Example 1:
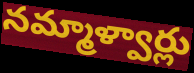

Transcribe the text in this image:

నమ్మాళ్వార్లు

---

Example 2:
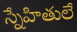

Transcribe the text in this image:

స్నేహితులే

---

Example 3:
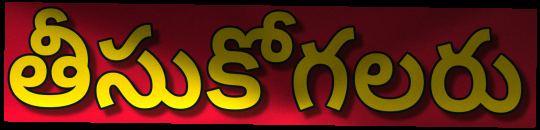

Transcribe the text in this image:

తీసుకోగలరు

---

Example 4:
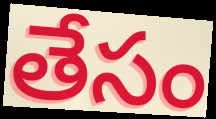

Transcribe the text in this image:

తేసం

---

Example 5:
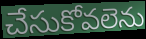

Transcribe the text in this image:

చేసుకోవలెను